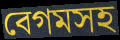
বেগমসহ